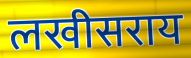
लखीसराय